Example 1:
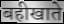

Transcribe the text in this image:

बहीखाते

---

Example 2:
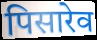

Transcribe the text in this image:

पिसारेव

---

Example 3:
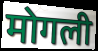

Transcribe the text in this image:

मोगली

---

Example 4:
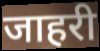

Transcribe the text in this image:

जाहरी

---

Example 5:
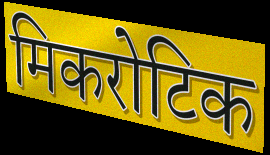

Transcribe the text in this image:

मिकरोटिक